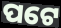
ପଟେ